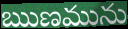
ఋణమును